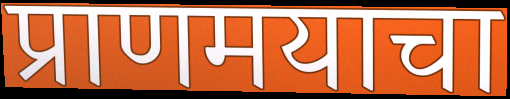
प्राणमयाचा